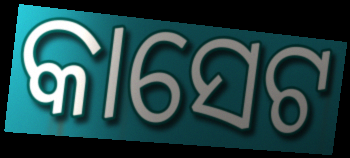
କାସେଟ